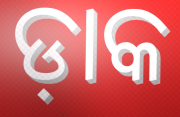
ଡ଼ାକ